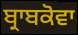
ਬ੍ਰਾਬਕੋਵਾ